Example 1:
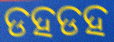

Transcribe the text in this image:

ଡହଡହ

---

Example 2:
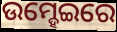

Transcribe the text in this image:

ଉମ୍ହେଇରେ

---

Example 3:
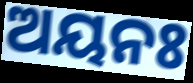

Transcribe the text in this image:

ଅୟନଃ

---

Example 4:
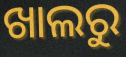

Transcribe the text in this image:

ଖାଲରୁ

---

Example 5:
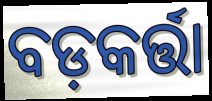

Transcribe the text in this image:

ବଡ଼କର୍ତ୍ତା